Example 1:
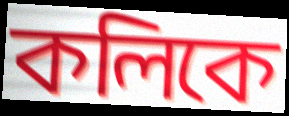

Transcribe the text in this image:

কলিকে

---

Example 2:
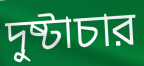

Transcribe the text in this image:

দুষ্টাচার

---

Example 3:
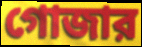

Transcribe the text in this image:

গোজার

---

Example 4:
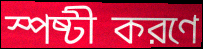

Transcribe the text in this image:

স্পষ্টীকরণে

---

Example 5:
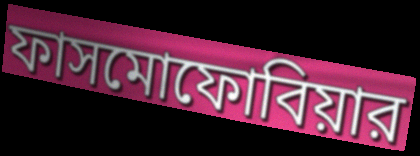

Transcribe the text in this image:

ফাসমোফোবিয়ার